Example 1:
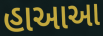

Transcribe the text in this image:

હાઆઆ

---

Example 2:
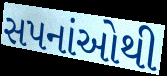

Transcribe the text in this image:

સપનાંઓથી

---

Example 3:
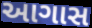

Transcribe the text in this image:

આગાસ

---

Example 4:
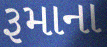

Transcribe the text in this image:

રૂમાના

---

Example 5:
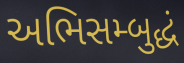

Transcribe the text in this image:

અભિસમ્બુદ્ધં